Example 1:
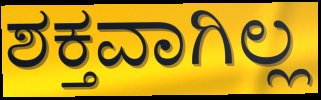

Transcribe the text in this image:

ಶಕ್ತವಾಗಿಲ್ಲ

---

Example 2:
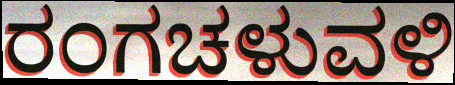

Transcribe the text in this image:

ರಂಗಚಳುವಳಿ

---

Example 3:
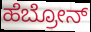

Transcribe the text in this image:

ಹೆಬ್ರೋನ್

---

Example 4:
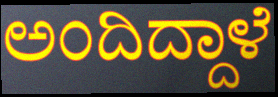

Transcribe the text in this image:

ಅಂದಿದ್ದಾಳೆ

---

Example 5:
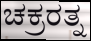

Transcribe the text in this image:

ಚಕ್ರರತ್ನ